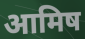
आमिष